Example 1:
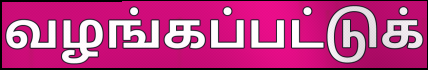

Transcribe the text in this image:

வழங்கப்பட்டுக்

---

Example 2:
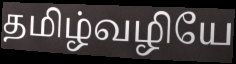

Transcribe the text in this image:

தமிழ்வழியே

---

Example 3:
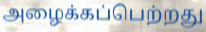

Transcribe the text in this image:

அழைக்கப்பெற்றது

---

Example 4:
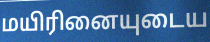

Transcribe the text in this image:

மயிரினையுடைய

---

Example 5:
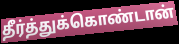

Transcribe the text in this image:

தீர்த்துக்கொண்டான்